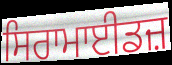
ਸਿਰਾਮਾਈਡਜ਼